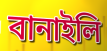
বানাইলি